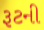
રૂટની